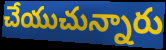
చేయుచున్నారు